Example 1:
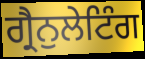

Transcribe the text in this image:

ਗ੍ਰੈਨੁਲੇਟਿੰਗ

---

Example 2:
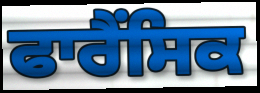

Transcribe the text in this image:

ਫਾਰੈਂਸਿਕ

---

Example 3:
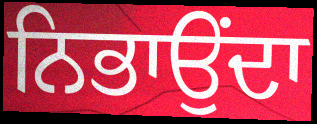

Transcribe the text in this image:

ਨਿਭਾਉਂਦਾ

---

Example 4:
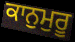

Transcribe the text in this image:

ਕਾਨੁਮੁਰੂ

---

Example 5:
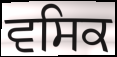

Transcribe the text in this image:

ਵਸਿਕ